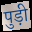
पुड़ी